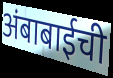
अंबाबाईची